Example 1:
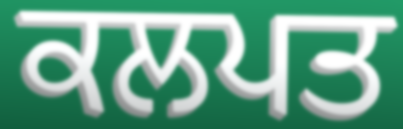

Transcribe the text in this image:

ਕਲਪਤ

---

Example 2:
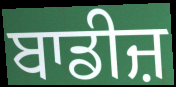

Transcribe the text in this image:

ਬਾਡੀਜ਼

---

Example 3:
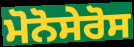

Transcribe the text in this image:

ਮੋਨੋਸੇਰੋਸ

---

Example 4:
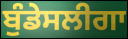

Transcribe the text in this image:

ਬੁੰਡੇਸਲੀਗਾ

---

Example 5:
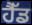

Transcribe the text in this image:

ਹੈੱਡ